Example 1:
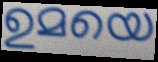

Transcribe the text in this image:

ഉമയെ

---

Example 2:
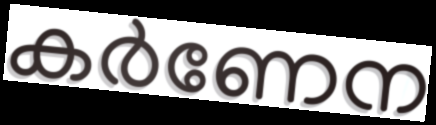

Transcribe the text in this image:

കർണേന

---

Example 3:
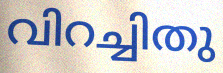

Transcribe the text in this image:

വിറച്ചിതു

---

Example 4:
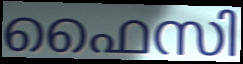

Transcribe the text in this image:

ഫൈസി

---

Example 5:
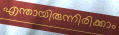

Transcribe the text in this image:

എന്തായിരുന്നിരിക്കാം